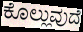
ಕೊಲ್ಲುವುದೆ